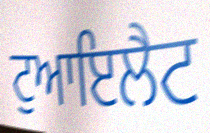
ਟੁਆਇਲੈਟ